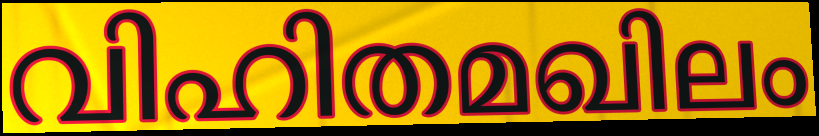
വിഹിതമഖിലം